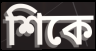
শিকে